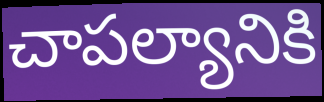
చాపల్యానికి